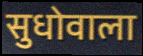
सुधोवाला